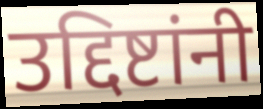
उद्दिष्टांनी